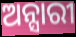
ଅନ୍ସାରୀ